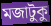
মজাটুকু